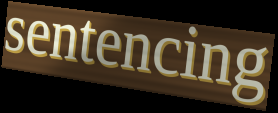
sentencing